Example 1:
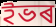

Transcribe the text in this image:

ইভৰ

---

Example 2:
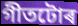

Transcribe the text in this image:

গীতটোৰ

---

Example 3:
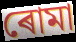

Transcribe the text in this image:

ৰোমা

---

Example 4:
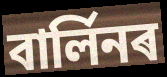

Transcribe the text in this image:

বাৰ্লিনৰ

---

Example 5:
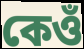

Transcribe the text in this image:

কেওঁ